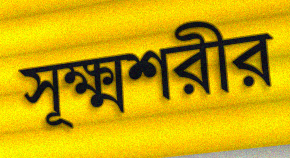
সূক্ষ্মশরীর